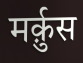
मर्क़ुस